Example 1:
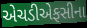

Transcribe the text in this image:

એચડીએફસીના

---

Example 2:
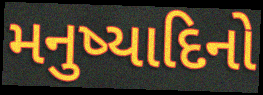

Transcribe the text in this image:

મનુષ્યાદિનો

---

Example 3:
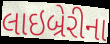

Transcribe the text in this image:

લાઇબ્રેરીના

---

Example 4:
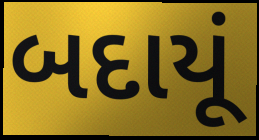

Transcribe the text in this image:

બદાયૂં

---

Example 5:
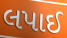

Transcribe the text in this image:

લપાઈ